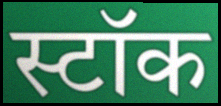
स्‍टॉक